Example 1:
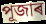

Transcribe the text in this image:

পূজাৰ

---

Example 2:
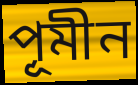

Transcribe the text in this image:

পূমীন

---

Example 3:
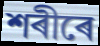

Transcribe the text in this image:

শৰীৰে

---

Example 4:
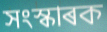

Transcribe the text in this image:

সংস্কাৰক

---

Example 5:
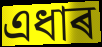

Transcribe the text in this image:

এধাৰ